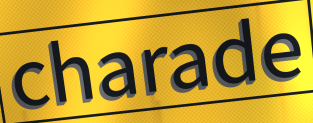
charade